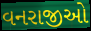
વનરાજીઓ